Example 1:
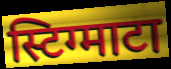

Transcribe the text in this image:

स्टिग्माटा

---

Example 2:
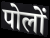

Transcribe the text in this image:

पोलों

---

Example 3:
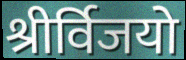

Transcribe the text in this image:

श्रीर्विजयो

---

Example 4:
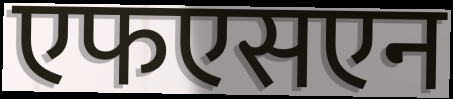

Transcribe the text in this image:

एफएसएन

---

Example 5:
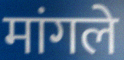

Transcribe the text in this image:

मांगले